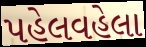
પહેલવહેલા